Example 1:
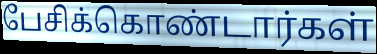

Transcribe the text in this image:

பேசிக்கொண்டார்கள்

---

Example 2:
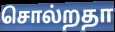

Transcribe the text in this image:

சொல்றதா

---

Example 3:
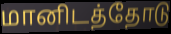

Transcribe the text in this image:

மானிடத்தோடு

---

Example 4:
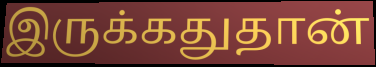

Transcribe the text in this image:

இருக்கதுதான்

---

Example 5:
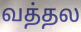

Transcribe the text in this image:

வத்தல